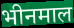
भीनमाल